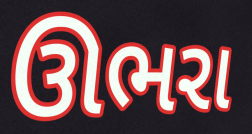
ઊભરા